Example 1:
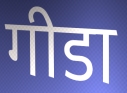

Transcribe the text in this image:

गीडा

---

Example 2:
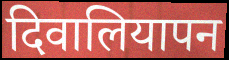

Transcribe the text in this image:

दिवालियापन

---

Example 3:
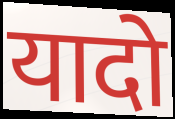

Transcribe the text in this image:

यादो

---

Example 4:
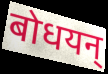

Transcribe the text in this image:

बोधयन्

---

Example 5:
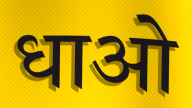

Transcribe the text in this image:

धाओ